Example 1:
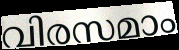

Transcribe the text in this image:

വിരസമാം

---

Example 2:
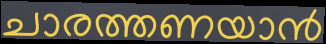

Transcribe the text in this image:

ചാരത്തണയാൻ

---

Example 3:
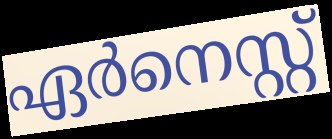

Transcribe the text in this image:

ഏർനെസ്റ്റ്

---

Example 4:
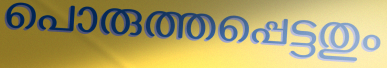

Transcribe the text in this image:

പൊരുത്തപ്പെട്ടതും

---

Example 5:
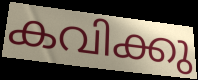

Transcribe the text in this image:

കവിക്കു